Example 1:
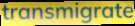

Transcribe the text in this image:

transmigrate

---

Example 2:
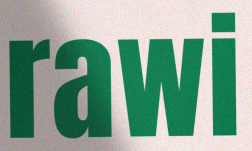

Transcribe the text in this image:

rawi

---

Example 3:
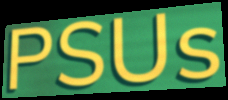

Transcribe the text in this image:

PSUs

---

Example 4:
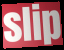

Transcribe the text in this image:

slip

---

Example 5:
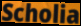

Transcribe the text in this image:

Scholia